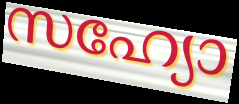
സഹ്യോ